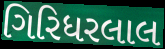
ગિરિધરલાલ